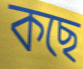
কছে